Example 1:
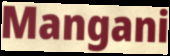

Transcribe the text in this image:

Mangani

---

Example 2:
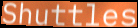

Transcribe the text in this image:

Shuttles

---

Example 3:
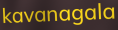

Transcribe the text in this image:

kavanagala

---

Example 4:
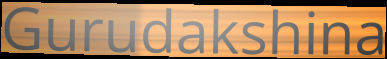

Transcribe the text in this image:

Gurudakshina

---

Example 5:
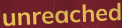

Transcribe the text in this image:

unreached